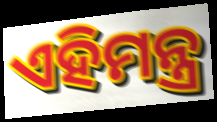
ଏହିମନ୍ତ୍ର